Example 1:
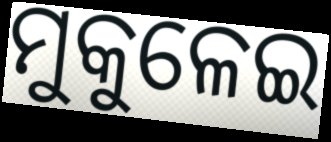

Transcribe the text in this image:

ମୁକୁଳେଇ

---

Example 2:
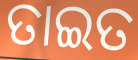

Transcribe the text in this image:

ତାଇତ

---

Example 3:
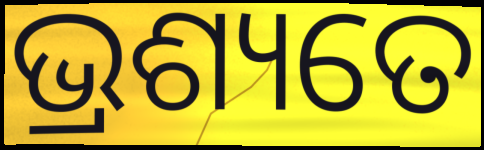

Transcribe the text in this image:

ଭ୍ରଶ୍ୟତେ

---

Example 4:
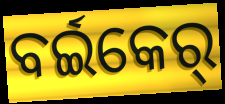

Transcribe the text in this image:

ବର୍ଇକେର୍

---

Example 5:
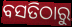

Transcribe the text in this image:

ବସତିଠାରୁ